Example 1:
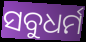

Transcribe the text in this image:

ସବୁଧର୍ମ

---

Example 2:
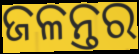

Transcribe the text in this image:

ଜଳନ୍ତର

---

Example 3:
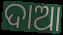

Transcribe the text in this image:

ଦାଆ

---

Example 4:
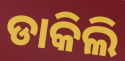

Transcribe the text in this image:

ଡାକିଲି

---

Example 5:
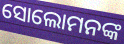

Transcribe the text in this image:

ସୋଲୋମନଙ୍କ